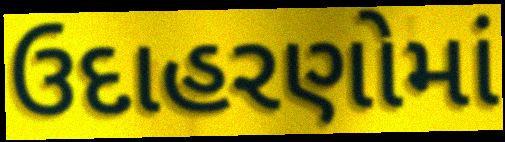
ઉદાહરણોમાં